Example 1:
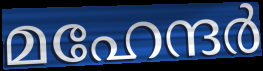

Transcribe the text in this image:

മഹേന്ദർ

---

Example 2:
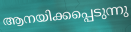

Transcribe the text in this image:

ആനയിക്കപ്പെടുന്നു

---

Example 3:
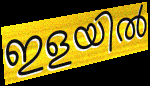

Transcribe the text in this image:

ഇളയിൽ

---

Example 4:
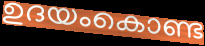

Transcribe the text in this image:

ഉദയംകൊണ്ട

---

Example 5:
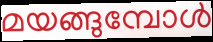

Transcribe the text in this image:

മയങ്ങുമ്പോൾ